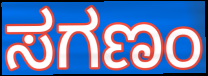
ಸಗಣಂ